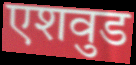
एशवुड